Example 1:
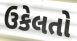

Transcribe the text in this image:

ઉકેલતો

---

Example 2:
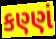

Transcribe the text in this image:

કણ્ણં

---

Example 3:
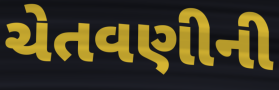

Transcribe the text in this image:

ચેતવણીની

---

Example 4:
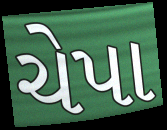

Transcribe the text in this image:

ચેપા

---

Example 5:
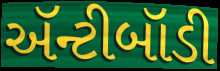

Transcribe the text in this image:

ઍન્ટીબૉડી